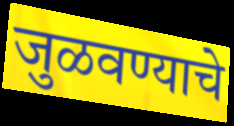
जुळवण्याचे